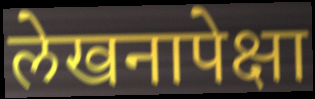
लेखनापेक्षा